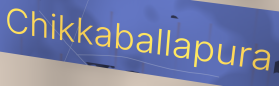
Chikkaballapura